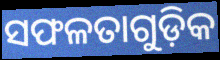
ସଫଳତାଗୁଡ଼ିକ